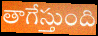
తాగేస్తుంది